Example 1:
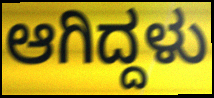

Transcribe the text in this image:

ಆಗಿದ್ದಳು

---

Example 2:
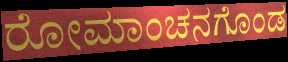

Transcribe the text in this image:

ರೋಮಾಂಚನಗೊಂಡ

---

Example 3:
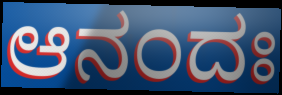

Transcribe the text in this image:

ಆನಂದಃ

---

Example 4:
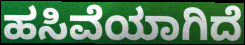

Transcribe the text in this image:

ಹಸಿವೆಯಾಗಿದೆ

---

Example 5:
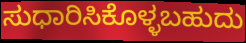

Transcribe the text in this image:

ಸುಧಾರಿಸಿಕೊಳ್ಳಬಹುದು